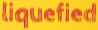
liquefied